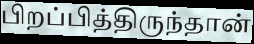
பிறப்பித்திருந்தான்